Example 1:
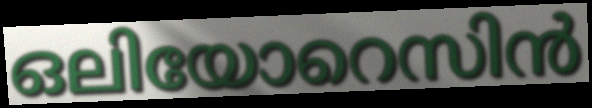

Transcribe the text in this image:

ഒലിയോറെസിൻ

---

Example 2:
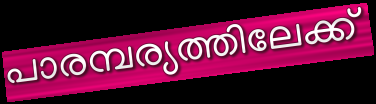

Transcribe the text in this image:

പാരമ്പര്യത്തിലേക്ക്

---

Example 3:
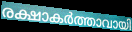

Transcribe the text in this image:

രക്ഷാകർത്താവായി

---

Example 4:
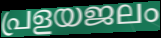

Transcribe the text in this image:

പ്രളയജലം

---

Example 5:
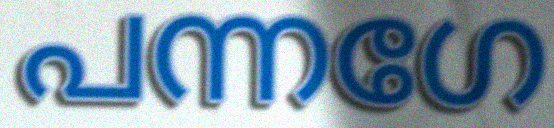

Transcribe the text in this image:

പന്നഗേ